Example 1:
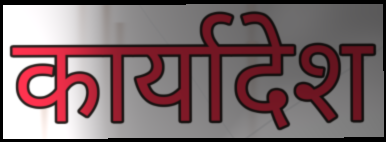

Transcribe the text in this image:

कार्यादेश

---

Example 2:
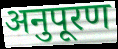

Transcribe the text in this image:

अनुपूरण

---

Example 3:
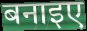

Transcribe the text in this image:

बनाइए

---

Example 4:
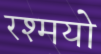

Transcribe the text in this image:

रश्मयो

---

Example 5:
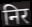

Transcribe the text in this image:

निर